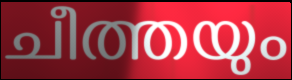
ചീത്തയും